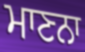
ਮਾਣਨਾ